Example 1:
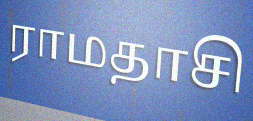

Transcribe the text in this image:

ராமதாசி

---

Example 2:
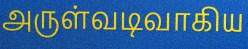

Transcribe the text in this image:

அருள்வடிவாகிய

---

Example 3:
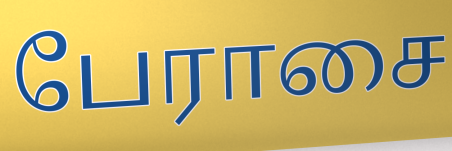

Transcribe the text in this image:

பேராசை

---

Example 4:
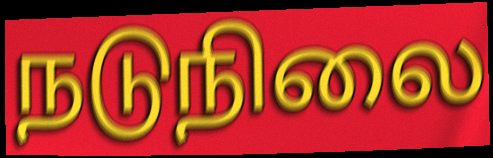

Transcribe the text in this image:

நடுநிலை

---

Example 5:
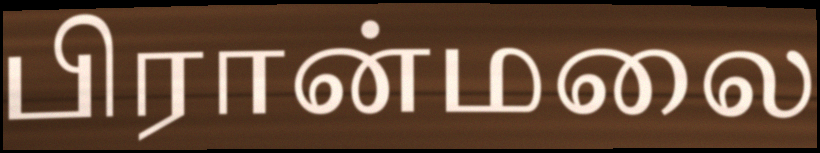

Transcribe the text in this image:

பிரான்மலை